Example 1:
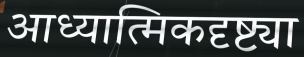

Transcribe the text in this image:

आध्यात्मिकदृष्ट्या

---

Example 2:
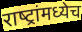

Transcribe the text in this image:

राष्ट्रांमध्येच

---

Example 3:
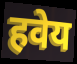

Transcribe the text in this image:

हवेय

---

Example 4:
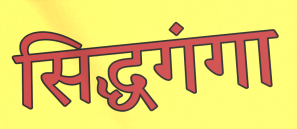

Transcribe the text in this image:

सिद्धगंगा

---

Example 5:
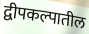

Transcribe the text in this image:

द्वीपकल्पातील